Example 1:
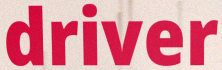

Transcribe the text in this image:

driver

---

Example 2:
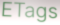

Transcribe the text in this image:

ETags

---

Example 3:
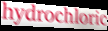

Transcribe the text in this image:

hydrochloric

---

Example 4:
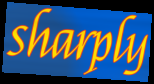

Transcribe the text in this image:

sharply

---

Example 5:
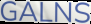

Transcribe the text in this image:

GALNS